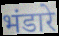
भंडारे